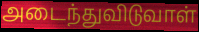
அடைந்துவிடுவாள்